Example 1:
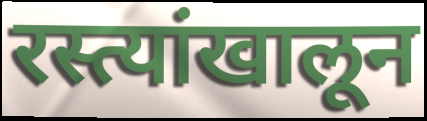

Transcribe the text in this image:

रस्त्यांखालून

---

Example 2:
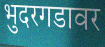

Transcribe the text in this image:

भुदरगडावर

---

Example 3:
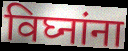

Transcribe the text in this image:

विघ्नांना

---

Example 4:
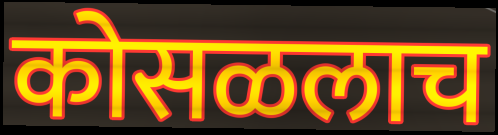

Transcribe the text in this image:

कोसळलाच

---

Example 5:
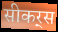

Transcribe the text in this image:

सीकर्स